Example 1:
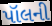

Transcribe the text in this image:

પૉલની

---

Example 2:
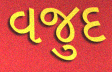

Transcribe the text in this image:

વજુદ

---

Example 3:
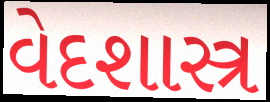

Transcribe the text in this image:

વેદશાસ્ત્ર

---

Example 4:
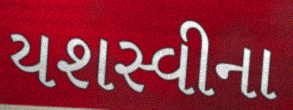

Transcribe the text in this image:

યશસ્વીના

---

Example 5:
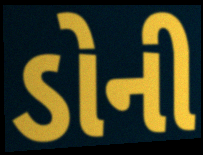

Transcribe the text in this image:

ડોની